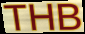
THB